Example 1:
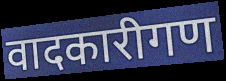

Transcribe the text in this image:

वादकारीगण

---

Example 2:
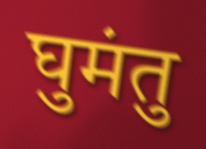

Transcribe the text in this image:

घुमंतु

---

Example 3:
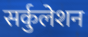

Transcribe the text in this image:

सर्कुलेशन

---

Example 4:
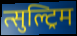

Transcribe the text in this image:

त्सुल्ट्रिम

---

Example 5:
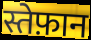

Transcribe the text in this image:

स्तेफ़ान